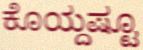
ಕೊಯ್ದಷ್ಟೂ